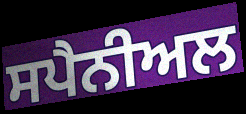
ਸਪੈਨੀਅਲ